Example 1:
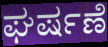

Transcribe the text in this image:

ಘರ್ಷಣೆ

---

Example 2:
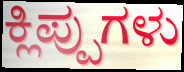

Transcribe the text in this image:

ಕ್ಲಿಪ್ಪುಗಳು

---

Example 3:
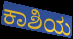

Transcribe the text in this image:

ಕಾಶಿಯ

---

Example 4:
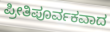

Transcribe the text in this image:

ಪ್ರೀತಿಪೂರ್ವಕವಾದ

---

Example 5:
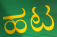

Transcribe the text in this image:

ಹಟ